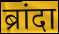
ब्रांदा